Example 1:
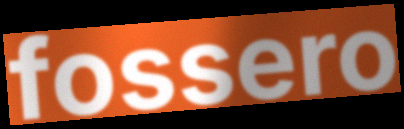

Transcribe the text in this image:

fossero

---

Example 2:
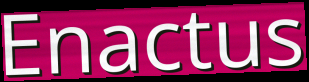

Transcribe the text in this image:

Enactus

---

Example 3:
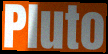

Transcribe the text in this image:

Pluto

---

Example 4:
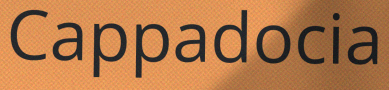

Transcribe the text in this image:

Cappadocia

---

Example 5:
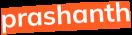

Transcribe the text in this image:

prashanth